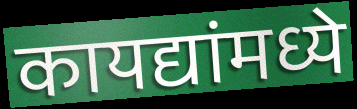
कायद्यांमध्ये